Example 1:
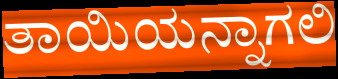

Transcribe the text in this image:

ತಾಯಿಯನ್ನಾಗಲಿ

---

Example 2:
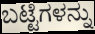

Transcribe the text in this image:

ಬಟ್ಟೆಗಳನ್ನು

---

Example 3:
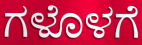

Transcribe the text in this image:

ಗಳೊಳಗೆ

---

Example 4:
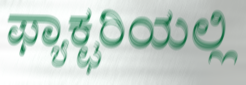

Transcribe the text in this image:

ಫ್ಯಾಕ್ಟರಿಯಲ್ಲಿ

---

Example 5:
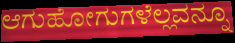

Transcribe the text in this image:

ಆಗುಹೋಗುಗಳೆಲ್ಲವನ್ನೂ